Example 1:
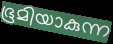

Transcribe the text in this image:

ഭൂമിയാകുന്ന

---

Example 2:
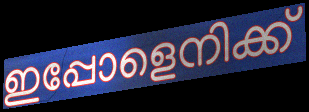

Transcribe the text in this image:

ഇപ്പോളെനിക്ക്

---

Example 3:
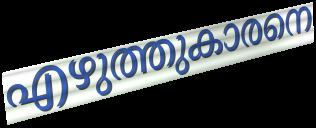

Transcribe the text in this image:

എഴുത്തുകാരനെ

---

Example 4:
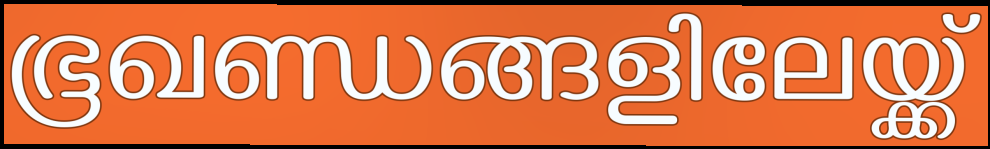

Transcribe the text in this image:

ഭൂഖണ്ഡങ്ങളിലേയ്ക്ക്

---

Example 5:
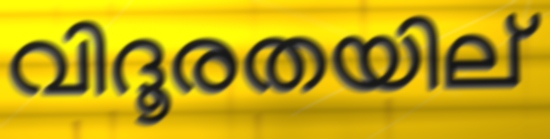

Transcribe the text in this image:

വിദൂരതയില്